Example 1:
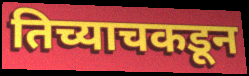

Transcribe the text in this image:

तिच्याचकडून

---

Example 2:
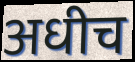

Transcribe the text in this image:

अधीच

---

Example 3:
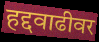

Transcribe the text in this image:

हद्दवाढीवर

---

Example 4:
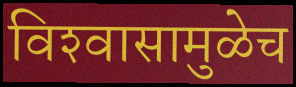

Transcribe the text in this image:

विश्वासामुळेच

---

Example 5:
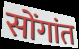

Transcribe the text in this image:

सोंगांत